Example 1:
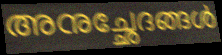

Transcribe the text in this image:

അനുച്ഛേദങ്ങൾ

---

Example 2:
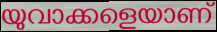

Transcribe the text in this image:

യുവാക്കളെയാണ്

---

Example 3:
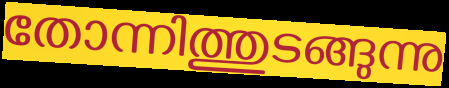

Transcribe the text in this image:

തോന്നിത്തുടങ്ങുന്നു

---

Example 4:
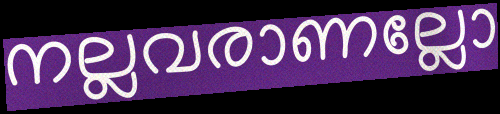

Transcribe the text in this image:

നല്ലവരാണല്ലോ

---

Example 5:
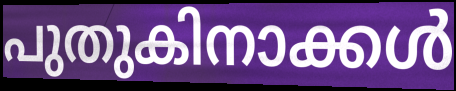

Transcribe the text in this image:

പുതുകിനാക്കൾ